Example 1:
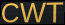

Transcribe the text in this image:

CWT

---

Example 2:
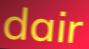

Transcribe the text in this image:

dair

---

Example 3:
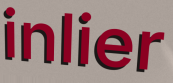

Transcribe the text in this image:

inlier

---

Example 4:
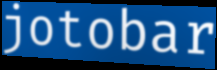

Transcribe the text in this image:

jotobar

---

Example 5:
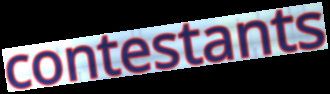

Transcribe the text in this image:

contestants